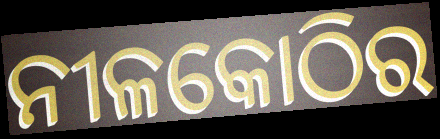
ନୀଳକୋଠିର